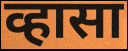
व्हासा